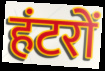
हंटरों